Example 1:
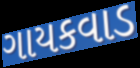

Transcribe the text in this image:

ગાયકવાડ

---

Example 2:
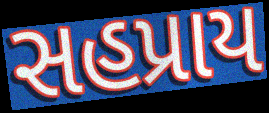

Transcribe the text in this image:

સહપ્રાય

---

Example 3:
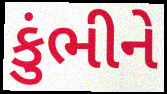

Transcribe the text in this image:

કુંભીને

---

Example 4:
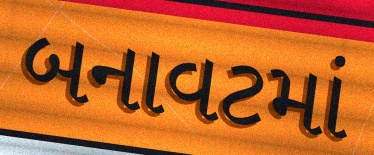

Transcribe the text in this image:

બનાવટમાં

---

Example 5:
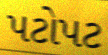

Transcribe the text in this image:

પટોપટ